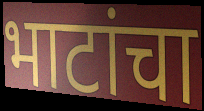
भाटांचा